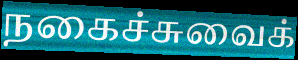
நகைச்சுவைக்